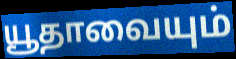
யூதாவையும்